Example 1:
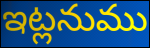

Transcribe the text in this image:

ఇట్లనుము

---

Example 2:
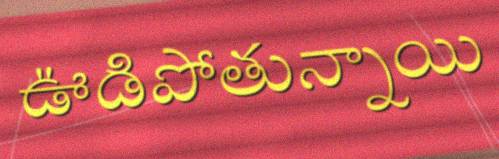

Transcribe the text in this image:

ఊడిపోతున్నాయి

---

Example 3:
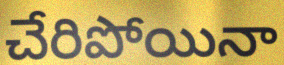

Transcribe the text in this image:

చేరిపోయినా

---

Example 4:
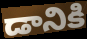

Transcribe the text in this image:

డానికి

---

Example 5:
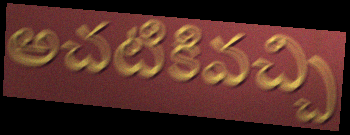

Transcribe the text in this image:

అచటికివచ్చి